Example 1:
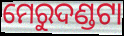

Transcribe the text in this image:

ମେରୁଦଣ୍ଡଟା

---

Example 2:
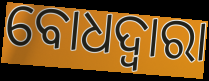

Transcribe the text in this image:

ବୋଧଦ୍ଵାରା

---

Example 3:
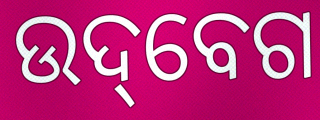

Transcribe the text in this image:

ଉଦ୍‌ବେଗ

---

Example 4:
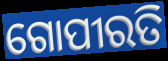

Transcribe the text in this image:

ଗୋପୀରତି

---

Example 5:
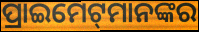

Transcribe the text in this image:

ପ୍ରାଇମେଟ୍‌ମାନଙ୍କର